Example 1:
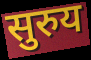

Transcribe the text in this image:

सुरुय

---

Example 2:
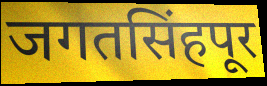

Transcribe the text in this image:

जगतसिंहपूर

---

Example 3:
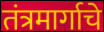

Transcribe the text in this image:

तंत्रमार्गाचे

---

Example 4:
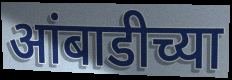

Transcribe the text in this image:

आंबाडीच्या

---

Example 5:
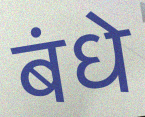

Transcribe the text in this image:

बंधे